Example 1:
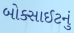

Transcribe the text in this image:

બોક્સાઈટનું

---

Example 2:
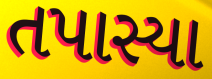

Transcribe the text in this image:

તપાસ્યા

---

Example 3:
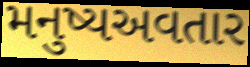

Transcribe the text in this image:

મનુષ્યઅવતાર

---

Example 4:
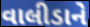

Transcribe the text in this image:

વાલીડાને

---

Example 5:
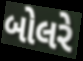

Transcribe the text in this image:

બોલરે